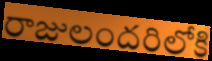
రాజులందరిలోకి